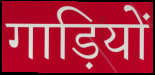
गाड़ियों